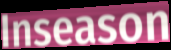
Inseason